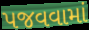
પજવવામાં